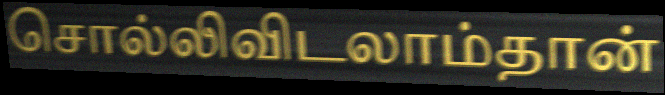
சொல்லிவிடலாம்தான்